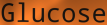
Glucose